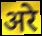
अरे